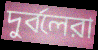
দুর্বলেরা